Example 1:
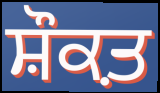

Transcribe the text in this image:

ਸ਼ੌਕ਼ਤ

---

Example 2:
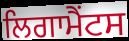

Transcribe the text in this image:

ਲਿਗਾਮੈਂਟਸ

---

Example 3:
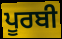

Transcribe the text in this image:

ਪੂਰਬੀ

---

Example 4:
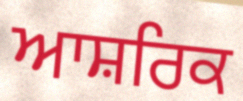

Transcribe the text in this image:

ਆਸ਼ਰਿਕ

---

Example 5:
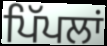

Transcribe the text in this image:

ਪਿੱਪਲਾਂ